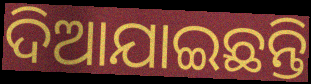
ଦିଆଯାଇଛନ୍ତି